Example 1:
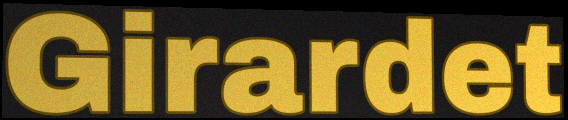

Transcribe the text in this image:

Girardet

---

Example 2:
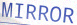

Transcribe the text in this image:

MIRROR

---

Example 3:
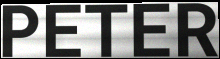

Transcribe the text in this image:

PETER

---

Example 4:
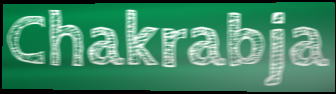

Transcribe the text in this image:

Chakrabja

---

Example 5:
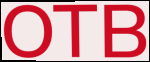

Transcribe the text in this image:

OTB